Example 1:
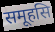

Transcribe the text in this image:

समूहसि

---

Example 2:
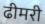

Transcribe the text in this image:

ढीमरी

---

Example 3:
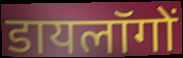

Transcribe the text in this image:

डायलॉगों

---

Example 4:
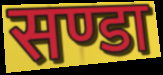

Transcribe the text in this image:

सण्डा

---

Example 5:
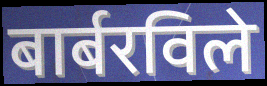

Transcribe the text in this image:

बार्बरविले